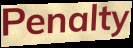
Penalty